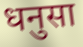
धनुसा